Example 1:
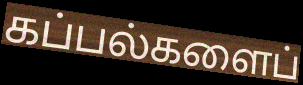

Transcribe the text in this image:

கப்பல்களைப்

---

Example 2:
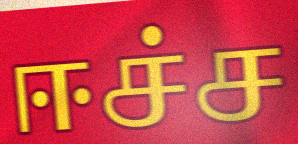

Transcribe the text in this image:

ஈச்ச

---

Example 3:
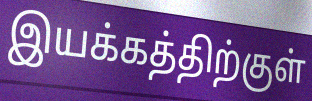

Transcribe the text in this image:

இயக்கத்திற்குள்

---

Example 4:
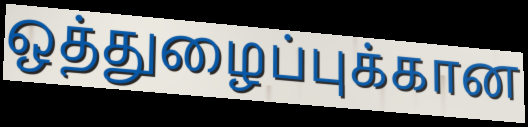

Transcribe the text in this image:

ஒத்துழைப்புக்கான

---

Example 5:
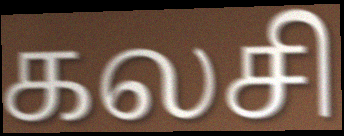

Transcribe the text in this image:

கலசி